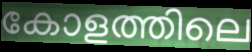
കോളത്തിലെ